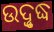
ଉଦ୍ବୃଦ୍ଧ